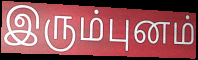
இரும்புனம்